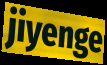
jiyenge